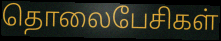
தொலைபேசிகள்